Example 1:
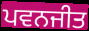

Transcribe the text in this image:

ਪਵਨਜੀਤ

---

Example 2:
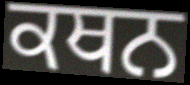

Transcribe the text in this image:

ਕਥਨ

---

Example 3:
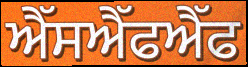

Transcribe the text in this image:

ਐੱਸਐੱਫਐੱਫ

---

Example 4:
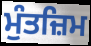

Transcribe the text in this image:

ਮੁੰਤਜ਼ਿਮ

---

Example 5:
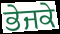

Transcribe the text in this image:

ਭੇਜਕੇ